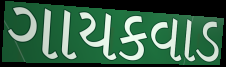
ગાયકવાડ